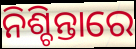
ନିଶ୍ଚିନ୍ତାରେ